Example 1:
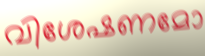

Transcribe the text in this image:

വിശേഷണമോ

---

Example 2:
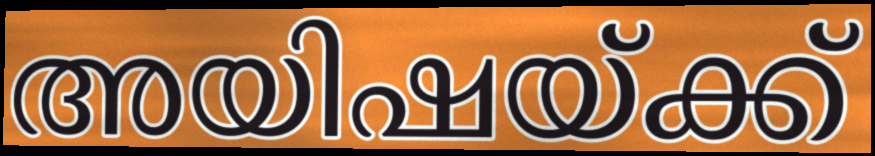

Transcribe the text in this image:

അയിഷയ്ക്ക്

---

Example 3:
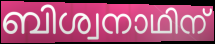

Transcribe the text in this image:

ബിശ്വനാഥിന്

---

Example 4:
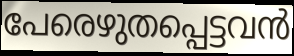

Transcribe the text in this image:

പേരെഴുതപ്പെട്ടവൻ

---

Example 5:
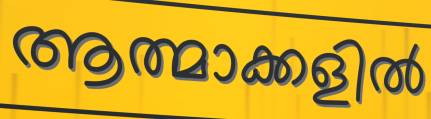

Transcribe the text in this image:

ആത്മാക്കളിൽ